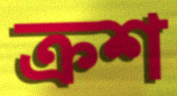
ক্রশ